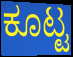
ಕೂಟ್ಟ